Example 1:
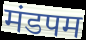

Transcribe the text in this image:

मंडपम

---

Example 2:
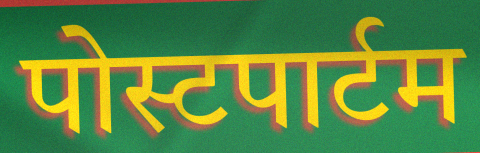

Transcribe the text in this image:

पोस्टपार्टम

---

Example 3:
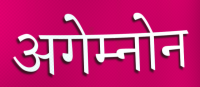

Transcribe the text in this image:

अगेम्नोन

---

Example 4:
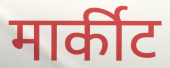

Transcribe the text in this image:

मार्कीट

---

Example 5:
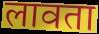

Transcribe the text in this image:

लावता